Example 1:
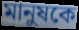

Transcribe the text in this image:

মানুষকে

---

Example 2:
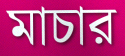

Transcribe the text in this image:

মাচার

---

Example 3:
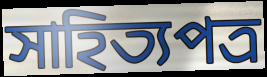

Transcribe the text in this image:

সাহিত্যপত্র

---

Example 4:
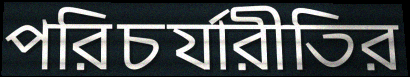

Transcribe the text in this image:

পরিচর্যারীতির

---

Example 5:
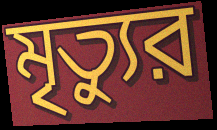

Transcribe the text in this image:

মৃত্যুর